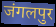
जंगलपुर